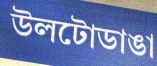
উলটোডাঙা